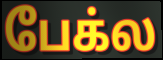
பேக்ல